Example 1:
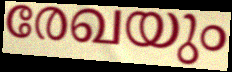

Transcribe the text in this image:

രേഖയും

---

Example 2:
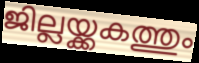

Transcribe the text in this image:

ജില്ലയ്ക്കകത്തും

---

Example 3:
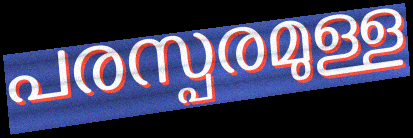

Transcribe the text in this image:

പരസ്പരമുള്ള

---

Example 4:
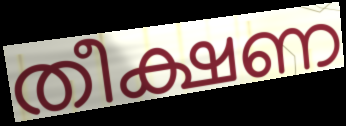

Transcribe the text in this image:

തീക്ഷണ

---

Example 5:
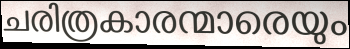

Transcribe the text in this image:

ചരിത്രകാരന്മാരെയും